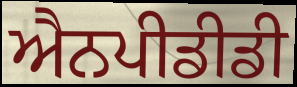
ਐਨਪੀਡੀਡੀ